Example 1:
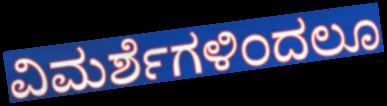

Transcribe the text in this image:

ವಿಮರ್ಶೆಗಳಿಂದಲೂ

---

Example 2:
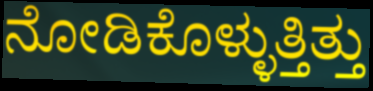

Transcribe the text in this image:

ನೋಡಿಕೊಳ್ಳುತ್ತಿತ್ತು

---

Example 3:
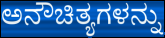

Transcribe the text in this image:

ಅನೌಚಿತ್ಯಗಳನ್ನು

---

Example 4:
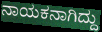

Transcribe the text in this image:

ನಾಯಕನಾಗಿದ್ದು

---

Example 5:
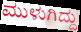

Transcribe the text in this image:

ಮುಳುಗಿದ್ದು